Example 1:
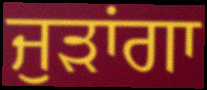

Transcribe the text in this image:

ਜੁੜਾਂਗਾ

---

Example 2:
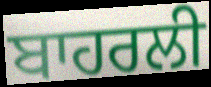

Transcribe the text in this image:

ਬਾਹਰਲੀ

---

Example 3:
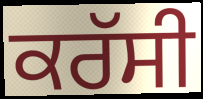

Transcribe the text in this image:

ਕਰੱਸੀ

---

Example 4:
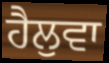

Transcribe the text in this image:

ਹੈਲੁਵਾ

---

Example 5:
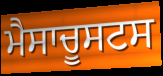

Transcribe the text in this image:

ਮੈਸਾਚੂਸਟਸ